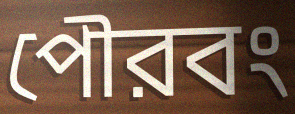
পৌরবং